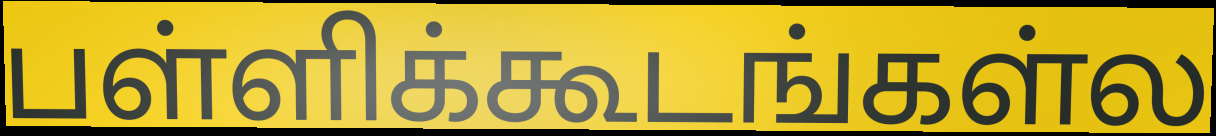
பள்ளிக்கூடங்கள்ல